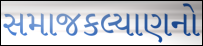
સમાજકલ્યાણનો